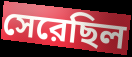
সেরেছিল